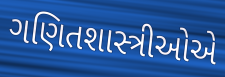
ગણિતશાસ્ત્રીઓએ